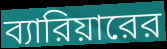
ব্যারিয়ারের